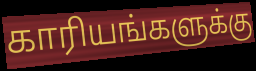
காரியங்களுக்கு